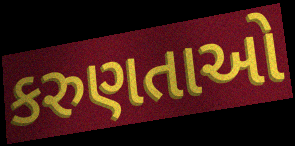
કરુણતાઓ